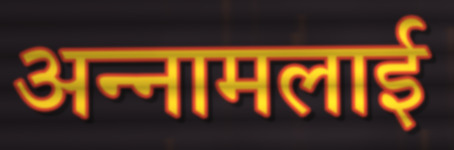
अन्‍नामलाई